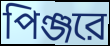
পিঞ্জরে